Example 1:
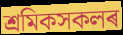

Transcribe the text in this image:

শ্ৰমিকসকলৰ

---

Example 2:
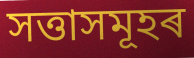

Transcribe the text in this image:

সত্তাসমূহৰ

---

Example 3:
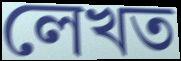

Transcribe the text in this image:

লেখত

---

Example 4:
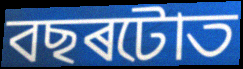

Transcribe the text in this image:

বছৰটোত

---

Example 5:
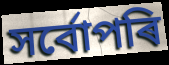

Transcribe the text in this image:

সৰ্বোপৰি